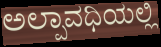
ಅಲ್ಪಾವಧಿಯಲ್ಲಿ